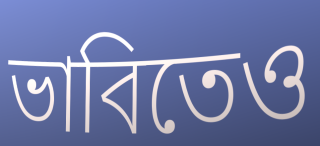
ভাবিতেও